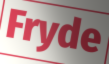
Fryde